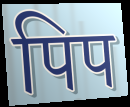
पिप